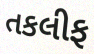
તકલીફ